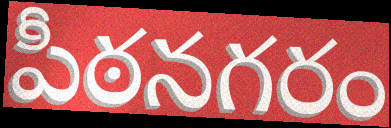
పీఠనగరం